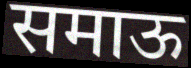
समाऊ